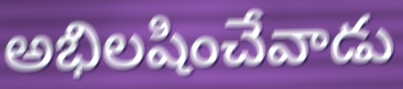
అభిలషించేవాడు